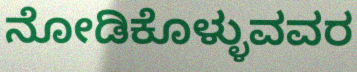
ನೋಡಿಕೊಳ್ಳುವವರ